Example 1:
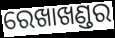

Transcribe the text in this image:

ରେଖାଖଣ୍ଡର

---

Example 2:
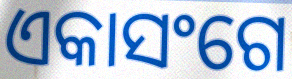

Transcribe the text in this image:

ଏକାସଂଗେ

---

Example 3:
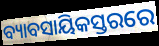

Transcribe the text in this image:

ବ୍ୟାବସାୟିକସ୍ତରରେ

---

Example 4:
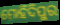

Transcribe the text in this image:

ମୋହିଦିପୁର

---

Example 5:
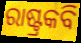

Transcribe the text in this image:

ରାଷ୍ଟ୍ରକବି